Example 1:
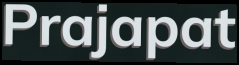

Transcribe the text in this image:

Prajapat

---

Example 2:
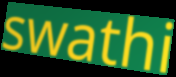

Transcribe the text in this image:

swathi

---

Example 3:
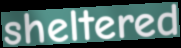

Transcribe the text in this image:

sheltered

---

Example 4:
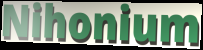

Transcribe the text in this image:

Nihonium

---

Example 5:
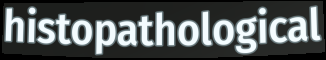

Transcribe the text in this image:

histopathological